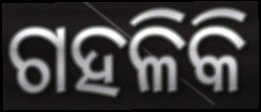
ଗହଳିକି